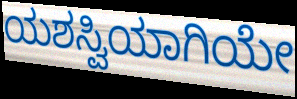
ಯಶಸ್ವಿಯಾಗಿಯೇ